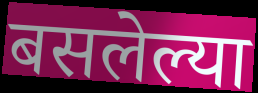
बसलेल्या